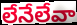
లేనేలేవా